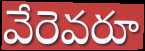
వేరెవరూ